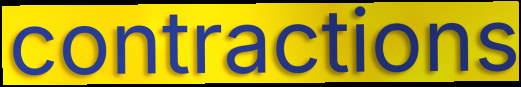
contractions